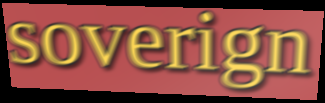
soverign